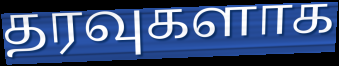
தரவுகளாக